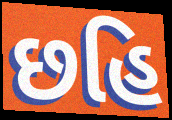
છહિ